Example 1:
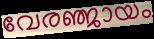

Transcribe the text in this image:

വേരഞ്ജായം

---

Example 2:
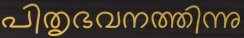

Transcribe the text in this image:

പിതൃഭവനത്തിന്നു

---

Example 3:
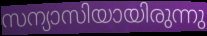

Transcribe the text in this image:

സന്യാസിയായിരുന്നു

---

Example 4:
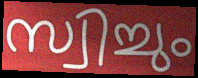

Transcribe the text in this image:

സ്വിച്ചും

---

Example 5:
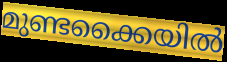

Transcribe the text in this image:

മുണ്ടക്കൈയിൽ